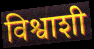
विश्वाशी